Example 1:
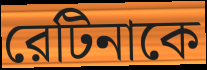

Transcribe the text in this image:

রেটিনাকে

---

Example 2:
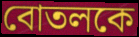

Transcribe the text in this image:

বোতলকে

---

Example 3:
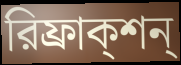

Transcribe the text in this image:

রিফ্রাক্শন্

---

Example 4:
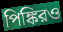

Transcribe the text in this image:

পিঙ্কিরও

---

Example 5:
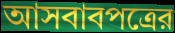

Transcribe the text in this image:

আসবাবপত্রের